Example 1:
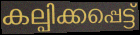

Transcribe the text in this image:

കല്പിക്കപ്പെട്ട്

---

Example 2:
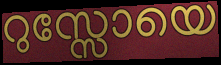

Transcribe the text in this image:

റുസ്സോയെ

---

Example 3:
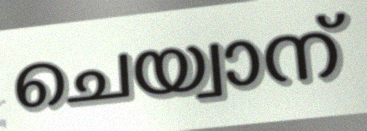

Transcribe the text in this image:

ചെയ്വാന്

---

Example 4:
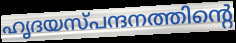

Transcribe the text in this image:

ഹൃദയസ്പന്ദനത്തിന്റെ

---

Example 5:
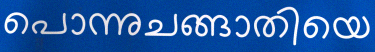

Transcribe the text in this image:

പൊന്നുചങ്ങാതിയെ